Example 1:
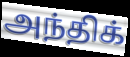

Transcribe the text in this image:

அந்திக்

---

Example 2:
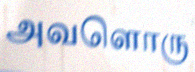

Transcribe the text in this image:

அவளொரு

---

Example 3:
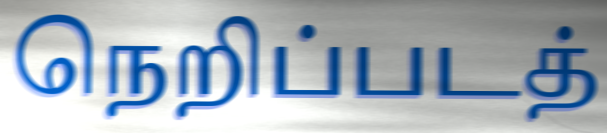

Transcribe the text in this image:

நெறிப்படத்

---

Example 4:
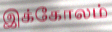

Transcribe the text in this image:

இக்கோலம்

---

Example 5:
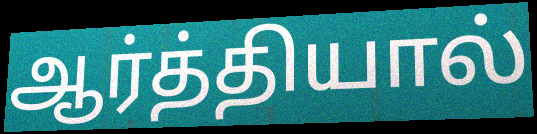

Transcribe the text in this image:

ஆர்த்தியால்